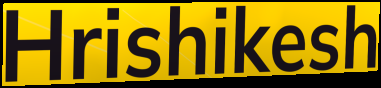
Hrishikesh